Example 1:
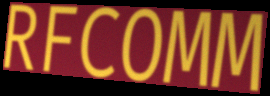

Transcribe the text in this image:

RFCOMM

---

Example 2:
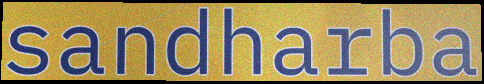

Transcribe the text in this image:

sandharba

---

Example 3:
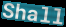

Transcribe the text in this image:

Shall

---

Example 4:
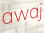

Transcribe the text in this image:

awaj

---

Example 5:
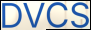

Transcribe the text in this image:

DVCS